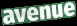
avenue